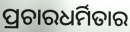
ପ୍ରଚାରଧର୍ମିତାର